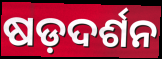
ଷଡ଼ଦର୍ଶନ